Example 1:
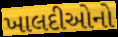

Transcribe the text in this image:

ખાલદીઓનો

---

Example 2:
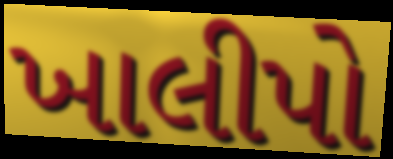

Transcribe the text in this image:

ખાલીપો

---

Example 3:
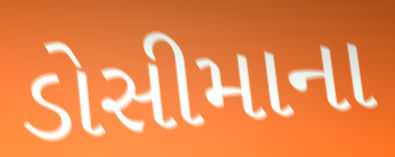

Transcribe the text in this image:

ડોસીમાના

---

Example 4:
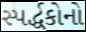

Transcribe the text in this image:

સ્પર્દ્ધકોનો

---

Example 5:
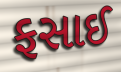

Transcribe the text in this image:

ફસાઈ